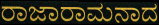
ರಾಜಾರಾಮನಾದ